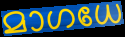
മാഗധേ